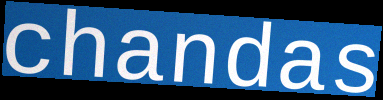
chandas